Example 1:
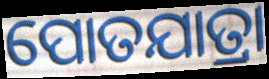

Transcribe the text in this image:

ପୋତଯାତ୍ରା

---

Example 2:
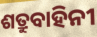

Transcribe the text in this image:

ଶତ୍ରୁବାହିନୀ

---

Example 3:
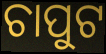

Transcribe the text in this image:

ଚାପୁଟ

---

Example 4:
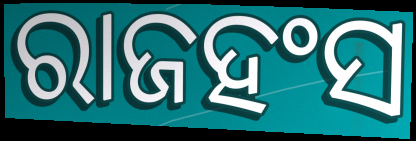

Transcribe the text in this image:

ରାଜହଂସ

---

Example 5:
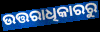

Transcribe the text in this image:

ଉତ୍ତରାଧିକାରରୁ